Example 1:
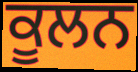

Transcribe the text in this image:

ਕੂਲਨ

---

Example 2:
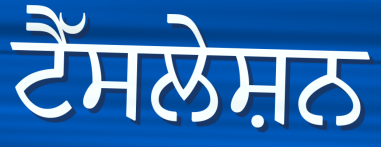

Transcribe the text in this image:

ਟੈੱਸਲੇਸ਼ਨ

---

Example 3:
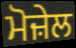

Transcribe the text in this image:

ਮੋਜ਼ੇਲ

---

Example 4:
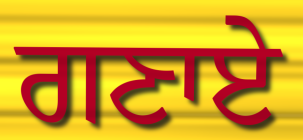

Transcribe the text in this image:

ਗਣਾਏ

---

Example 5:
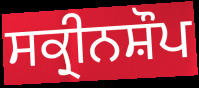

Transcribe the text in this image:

ਸਕ੍ਰੀਨਸ਼ੌਪ